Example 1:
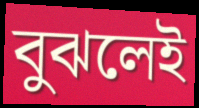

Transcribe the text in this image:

বুঝলেই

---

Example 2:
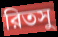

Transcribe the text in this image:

রিতসু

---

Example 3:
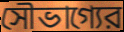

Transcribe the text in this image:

সৌভাগ্যের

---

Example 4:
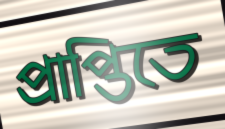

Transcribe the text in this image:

প্রাপ্তিতে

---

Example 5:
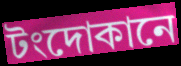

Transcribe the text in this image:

টংদোকানে